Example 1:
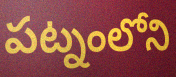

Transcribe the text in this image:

పట్నంలోని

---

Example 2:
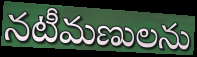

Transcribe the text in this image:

నటీమణులను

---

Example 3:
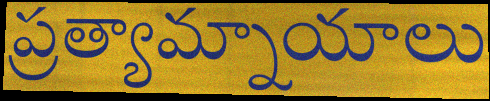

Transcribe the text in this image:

ప్రత్యామ్నాయాలు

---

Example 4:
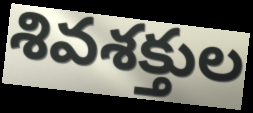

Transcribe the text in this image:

శివశక్తుల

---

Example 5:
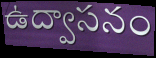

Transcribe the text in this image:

ఉద్వాసనం